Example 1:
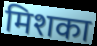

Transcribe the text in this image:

मिशका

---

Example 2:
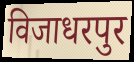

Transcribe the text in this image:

विजाधरपुर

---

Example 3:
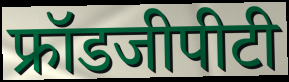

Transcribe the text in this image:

फ्रॉडजीपीटी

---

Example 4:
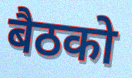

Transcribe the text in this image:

बैठको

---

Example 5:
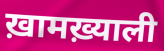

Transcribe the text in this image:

ख़ामख़्याली